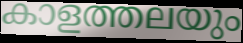
കാളത്തലയും